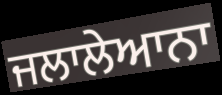
ਜਲਾਲੇਆਨਾ